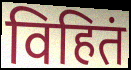
विहितं